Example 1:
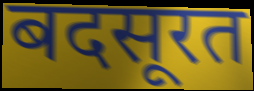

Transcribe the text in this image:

बदसूरत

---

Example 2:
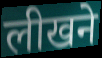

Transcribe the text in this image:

लीखने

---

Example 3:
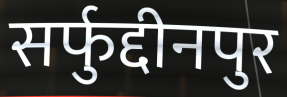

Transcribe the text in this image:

सर्फुद्दीनपुर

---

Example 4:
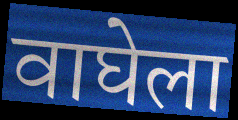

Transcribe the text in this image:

वाघेला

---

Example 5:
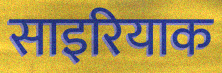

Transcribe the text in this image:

साइरियाक